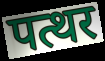
पत्थर